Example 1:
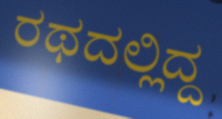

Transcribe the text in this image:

ರಥದಲ್ಲಿದ್ದ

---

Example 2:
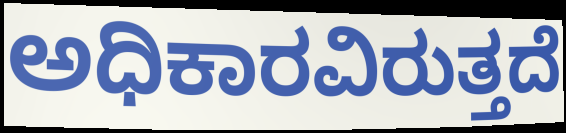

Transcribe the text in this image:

ಅಧಿಕಾರವಿರುತ್ತದೆ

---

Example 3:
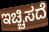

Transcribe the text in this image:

ಇಚ್ಚಿಸದೆ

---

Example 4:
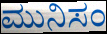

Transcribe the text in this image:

ಮುನಿಸಂ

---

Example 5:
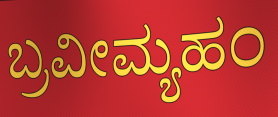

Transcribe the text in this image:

ಬ್ರವೀಮ್ಯಹಂ